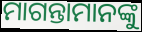
ମାଗନ୍ତାମାନଙ୍କୁ